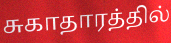
சுகாதாரத்தில்